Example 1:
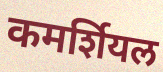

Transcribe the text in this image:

कमर्शियल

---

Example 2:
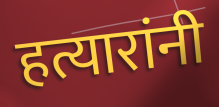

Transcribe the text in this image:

हत्यारांनी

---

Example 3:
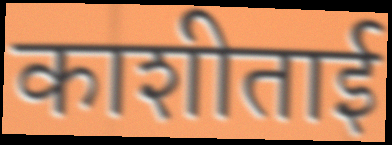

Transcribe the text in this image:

काशीताई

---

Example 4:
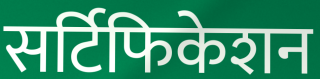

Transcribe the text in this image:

सर्टिफिकेशन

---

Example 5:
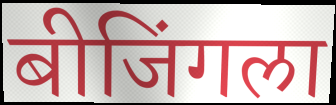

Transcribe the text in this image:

बीजिंगला